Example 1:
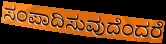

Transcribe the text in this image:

ಸಂಪಾದಿಸುವುದೆಂದರೆ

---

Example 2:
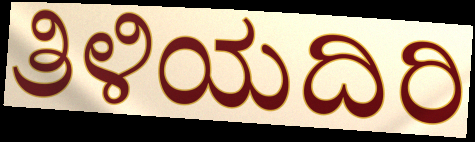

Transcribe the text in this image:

ತಿಳಿಯದಿರಿ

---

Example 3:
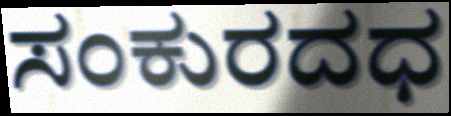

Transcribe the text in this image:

ಸಂಕುರದಧ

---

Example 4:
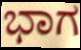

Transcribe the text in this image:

ಭಾಗ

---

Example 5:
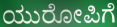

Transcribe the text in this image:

ಯುರೋಪಿಗೆ